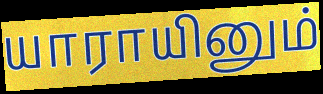
யாராயினும்